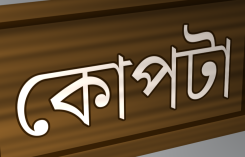
কোপটা